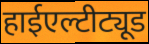
हाईएल्टीट्यूड